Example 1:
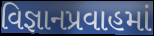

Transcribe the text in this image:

વિજ્ઞાનપ્રવાહમાં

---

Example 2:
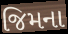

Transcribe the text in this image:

જિમના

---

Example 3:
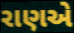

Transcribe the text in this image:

રાણએ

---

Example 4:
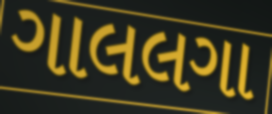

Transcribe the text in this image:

ગાલલગા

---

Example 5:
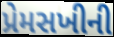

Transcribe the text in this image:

પ્રેમસખીની